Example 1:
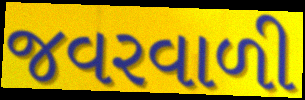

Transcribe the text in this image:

જવરવાળી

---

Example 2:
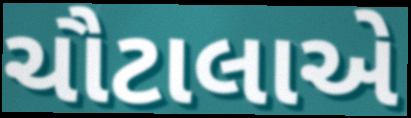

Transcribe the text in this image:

ચૌટાલાએ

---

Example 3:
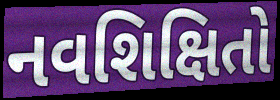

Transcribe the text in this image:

નવશિક્ષિતો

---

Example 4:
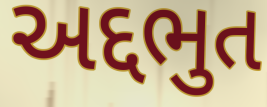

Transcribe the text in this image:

અદ્દભુત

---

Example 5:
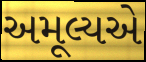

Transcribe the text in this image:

અમૂલ્યએ